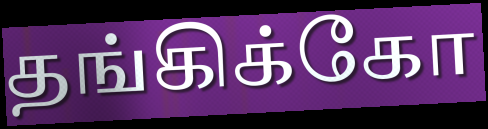
தங்கிக்கோ